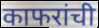
काफरांची